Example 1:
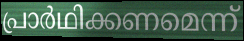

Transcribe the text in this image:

പ്രാർഥിക്കണമെന്ന്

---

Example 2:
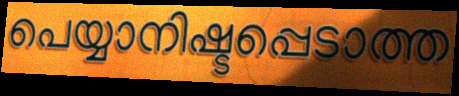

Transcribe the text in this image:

പെയ്യാനിഷ്ടപ്പെടാത്ത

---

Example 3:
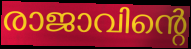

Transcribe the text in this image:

രാജാവിന്റെ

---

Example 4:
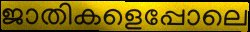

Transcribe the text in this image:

ജാതികളെപ്പോലെ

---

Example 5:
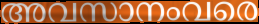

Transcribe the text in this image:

അവസാനംവരെ